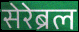
सेरेब्रल